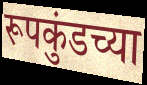
रूपकुंडच्या